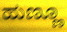
ಹುಣ್ಣೂ